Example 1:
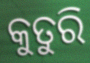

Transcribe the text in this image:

କୁତୁରି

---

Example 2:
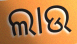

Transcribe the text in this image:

ଲାଉ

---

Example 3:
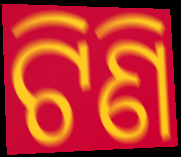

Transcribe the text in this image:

ଟିଣି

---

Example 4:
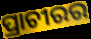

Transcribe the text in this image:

ପ୍ରାଚୀରର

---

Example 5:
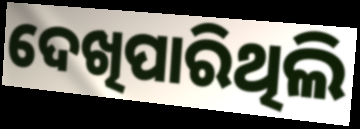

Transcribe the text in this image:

ଦେଖିପାରିଥିଲି